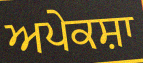
ਅਪੇਕਸ਼ਾ